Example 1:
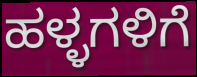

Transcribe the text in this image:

ಹಳ್ಳಗಳಿಗೆ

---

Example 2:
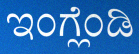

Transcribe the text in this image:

ಇಂಗ್ಲೆಂಡಿ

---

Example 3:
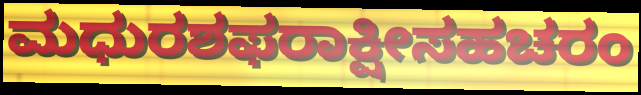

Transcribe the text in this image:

ಮಧುರಶಫರಾಕ್ಷೀಸಹಚರಂ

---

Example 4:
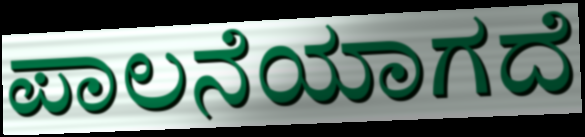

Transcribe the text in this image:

ಪಾಲನೆಯಾಗದೆ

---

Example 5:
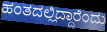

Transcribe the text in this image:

ಹಂತದಲ್ಲಿದ್ದಾರೆಂದು